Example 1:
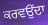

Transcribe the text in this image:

ਕਰਵਉਂਦਾ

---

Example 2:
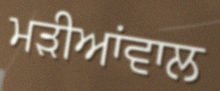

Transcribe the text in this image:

ਮੜੀਆਂਵਾਲ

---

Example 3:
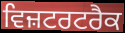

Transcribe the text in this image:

ਵਿਜ਼ਟਰਟਰੈਕ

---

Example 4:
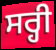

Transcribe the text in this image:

ਸਰ੍ਹੀ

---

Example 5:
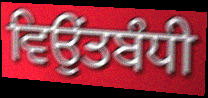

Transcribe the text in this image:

ਵਿਉਂਤਬੰਧੀ